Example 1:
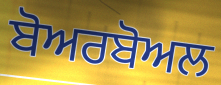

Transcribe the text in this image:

ਬੋਅਰਬੋਅਲ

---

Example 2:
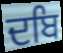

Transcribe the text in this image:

ਦਬਿ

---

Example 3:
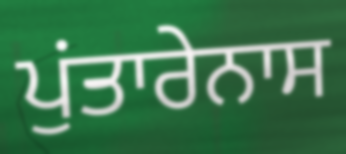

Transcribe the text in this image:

ਪੁਂਤਾਰੇਨਾਸ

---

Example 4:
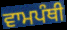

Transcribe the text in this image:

ਵਾਮਪੰਥੀ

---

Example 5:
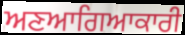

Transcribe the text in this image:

ਅਣਆਗਿਆਕਾਰੀ